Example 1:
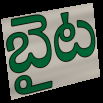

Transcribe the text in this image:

బైట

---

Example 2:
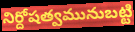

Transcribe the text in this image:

నిర్దోషత్వమునుబట్టి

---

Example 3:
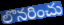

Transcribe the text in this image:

లొనరించు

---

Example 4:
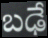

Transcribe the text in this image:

బఢే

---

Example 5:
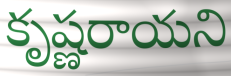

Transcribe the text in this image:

కృష్ణరాయని